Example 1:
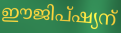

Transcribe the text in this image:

ഈജിപ്ഷ്യന്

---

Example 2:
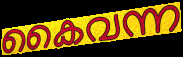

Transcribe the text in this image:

കൈവന്ന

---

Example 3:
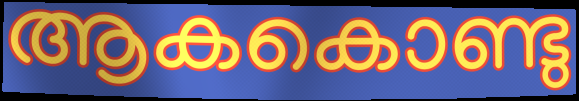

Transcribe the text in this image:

ആകകൊണ്ടു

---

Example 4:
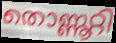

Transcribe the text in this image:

തൊണ്ണൂറ്റി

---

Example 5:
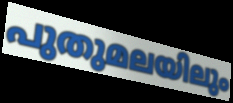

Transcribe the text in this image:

പുതുമലയിലും